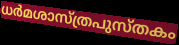
ധർമശാസ്ത്രപുസ്തകം